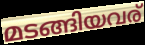
മടങ്ങിയവര്